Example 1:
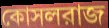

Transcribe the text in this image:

কোসলরাজ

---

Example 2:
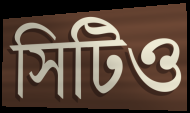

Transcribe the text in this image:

সিটিও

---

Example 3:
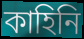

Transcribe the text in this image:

কাহিনি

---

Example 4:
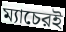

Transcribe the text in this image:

ম্যাচেরই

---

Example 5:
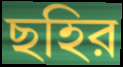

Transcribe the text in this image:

ছহির